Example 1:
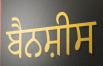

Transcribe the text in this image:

ਬੈਨਸ਼ੀਸ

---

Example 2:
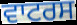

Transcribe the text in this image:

ਵਾਟਰਸ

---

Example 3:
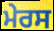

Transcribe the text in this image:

ਮੇਰਸ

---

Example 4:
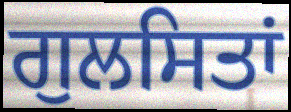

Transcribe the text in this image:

ਗੁਲਸਿਤਾਂ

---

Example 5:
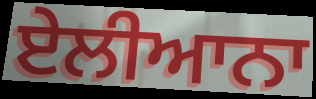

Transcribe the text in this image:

ਏਲੀਆਨਾ